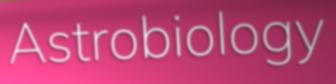
Astrobiology